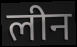
लीन